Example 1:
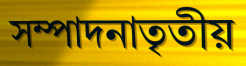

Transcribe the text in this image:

সম্পাদনাতৃতীয়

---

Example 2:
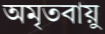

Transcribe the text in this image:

অমৃতবায়ু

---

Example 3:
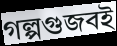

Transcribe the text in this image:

গল্পগুজবই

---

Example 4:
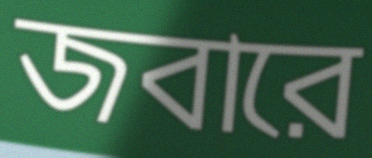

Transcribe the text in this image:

জবারে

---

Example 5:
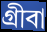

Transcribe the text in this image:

গ্রীবা